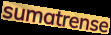
sumatrense